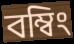
বম্বিং